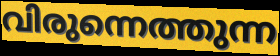
വിരുന്നെത്തുന്ന